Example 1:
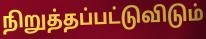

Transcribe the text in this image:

நிறுத்தப்பட்டுவிடும்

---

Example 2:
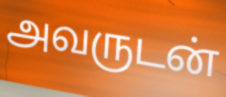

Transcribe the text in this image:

அவருடன்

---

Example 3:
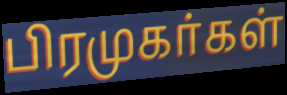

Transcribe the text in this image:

பிரமுகர்கள்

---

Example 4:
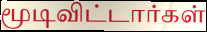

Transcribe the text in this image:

மூடிவிட்டார்கள்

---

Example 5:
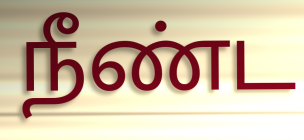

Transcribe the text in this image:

நீண்ட